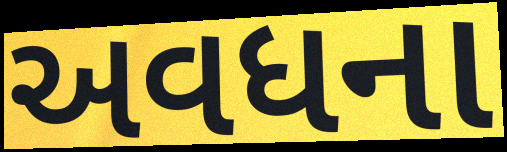
અવધના